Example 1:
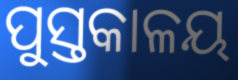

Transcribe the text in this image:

ପୁସ୍ତକାଳୟ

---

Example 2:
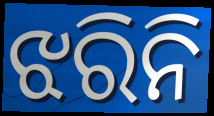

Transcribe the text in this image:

ଝରିନି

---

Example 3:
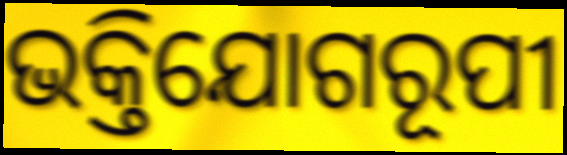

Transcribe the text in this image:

ଭକ୍ତିଯୋଗରୂପୀ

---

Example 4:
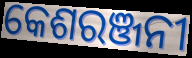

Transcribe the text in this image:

କେଶରଞ୍ଜନୀ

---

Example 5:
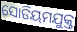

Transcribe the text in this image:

ସୋଡିୟମଯୁକ୍ତ